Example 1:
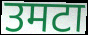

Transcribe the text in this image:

उमटा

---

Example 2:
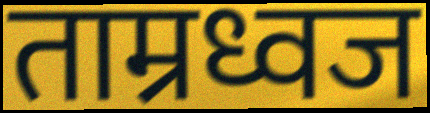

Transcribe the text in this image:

ताम्रध्वज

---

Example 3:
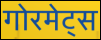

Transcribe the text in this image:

गोरमेट्स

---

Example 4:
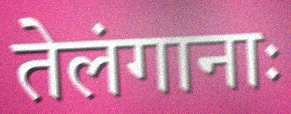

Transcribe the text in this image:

तेलंगानाः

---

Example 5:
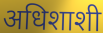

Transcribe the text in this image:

अधिशाशी